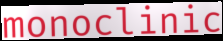
monoclinic